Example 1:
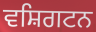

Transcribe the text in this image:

ਵਸ਼ਿਗਟਨ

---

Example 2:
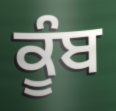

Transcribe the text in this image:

ਕੂੰਬ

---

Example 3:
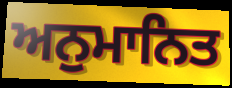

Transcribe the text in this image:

ਅਨੁਮਾਨਿਤ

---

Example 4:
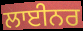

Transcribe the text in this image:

ਲਾਈਨਰ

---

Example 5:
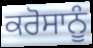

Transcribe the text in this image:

ਕਰੋਸਾਨੂੰ